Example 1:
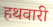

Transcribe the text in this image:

हथवारी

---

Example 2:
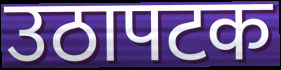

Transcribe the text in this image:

उठापटक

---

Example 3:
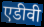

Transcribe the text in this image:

एडीवी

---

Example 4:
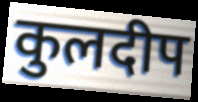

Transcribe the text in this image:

कुलदीप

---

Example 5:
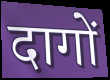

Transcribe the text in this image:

दागों